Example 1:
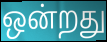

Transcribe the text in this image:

ஒன்றது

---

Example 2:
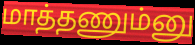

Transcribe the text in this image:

மாத்தணும்னு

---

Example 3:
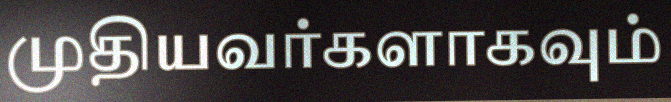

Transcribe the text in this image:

முதியவர்களாகவும்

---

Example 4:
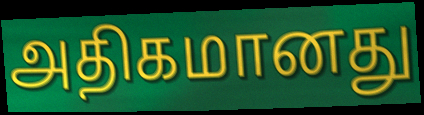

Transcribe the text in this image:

அதிகமானது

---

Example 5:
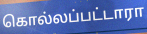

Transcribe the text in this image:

கொல்லப்பட்டாரா